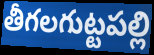
తీగలగుట్టపల్లి